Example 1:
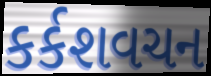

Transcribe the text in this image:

કર્કશવચન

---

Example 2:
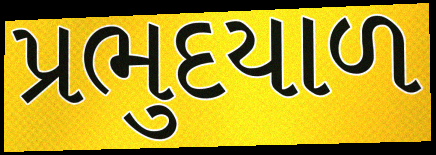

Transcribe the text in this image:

પ્રભુદયાળ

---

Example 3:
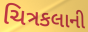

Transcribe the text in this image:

ચિત્રકલાની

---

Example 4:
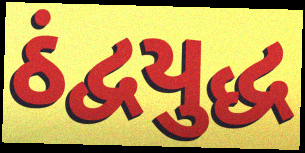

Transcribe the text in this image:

ઠંદ્વયુદ્ધ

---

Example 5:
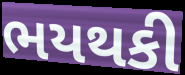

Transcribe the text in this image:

ભયથકી